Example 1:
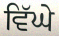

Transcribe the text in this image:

ਵਿੱਘੇ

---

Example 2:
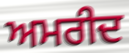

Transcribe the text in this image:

ਅਮਰੀਦ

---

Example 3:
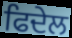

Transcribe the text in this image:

ਫਿਦੇਲ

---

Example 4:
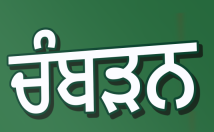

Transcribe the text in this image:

ਚੰਬੜਨ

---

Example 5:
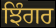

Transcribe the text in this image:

ਝਿੰਗਰ